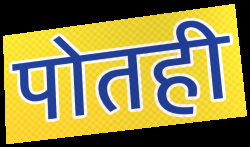
पोतही